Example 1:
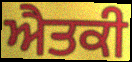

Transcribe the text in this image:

ਐਤਕੀ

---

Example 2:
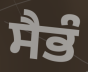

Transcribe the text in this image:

ਸੈਭੰ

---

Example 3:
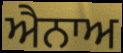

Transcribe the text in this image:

ਐਨਾਅ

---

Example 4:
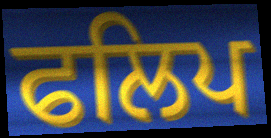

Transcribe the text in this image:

ਫਲਿਪ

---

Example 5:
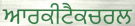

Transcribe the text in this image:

ਆਰਕੀਟੈਕਚਰਲ